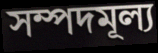
সম্পদমূল্য